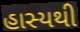
હાસ્યથી